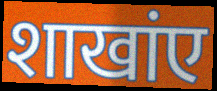
शाखांए